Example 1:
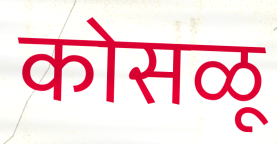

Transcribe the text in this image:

कोसळू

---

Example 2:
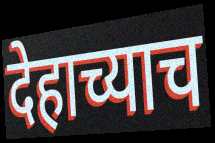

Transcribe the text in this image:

देहाच्याच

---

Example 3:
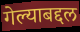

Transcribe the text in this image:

गेल्याबद्दल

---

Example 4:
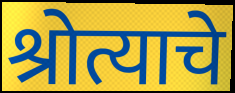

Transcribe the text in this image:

श्रोत्याचे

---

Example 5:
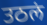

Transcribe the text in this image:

उठलं